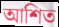
আশিত